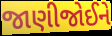
જાણીજોઈને